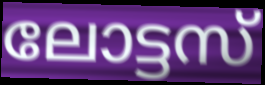
ലോട്ടസ്